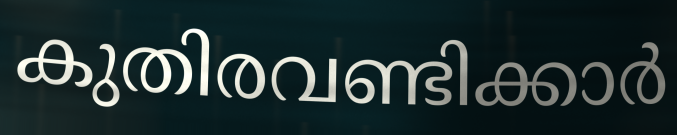
കുതിരവണ്ടിക്കാർ